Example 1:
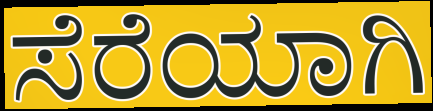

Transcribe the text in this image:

ಸೆರೆಯಾಗಿ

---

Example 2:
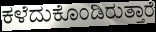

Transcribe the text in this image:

ಕಳೆದುಕೊಂಡಿರುತ್ತಾರೆ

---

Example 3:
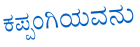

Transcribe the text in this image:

ಕಪ್ಪಂಗಿಯವನು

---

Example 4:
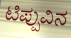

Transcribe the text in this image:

ಟಿಪ್ಪುವಿನ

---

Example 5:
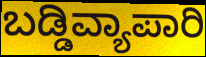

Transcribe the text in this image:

ಬಡ್ಡಿವ್ಯಾಪಾರಿ